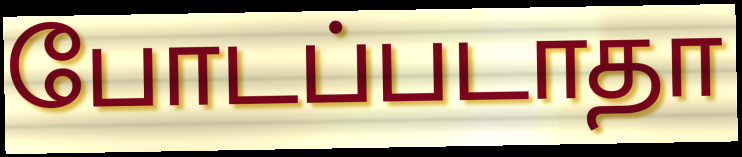
போடப்படாதா